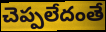
చెప్పలేదంతే